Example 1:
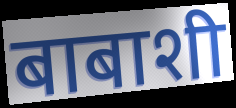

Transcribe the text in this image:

बाबाशी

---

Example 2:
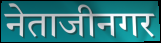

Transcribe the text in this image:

नेताजीनगर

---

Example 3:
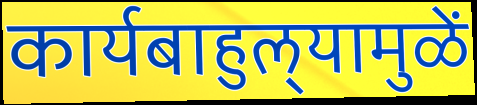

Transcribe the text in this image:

कार्यबाहुल्यामुळें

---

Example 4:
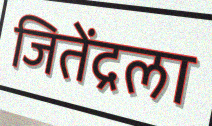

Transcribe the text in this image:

जितेंद्रला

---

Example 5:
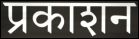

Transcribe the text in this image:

प्रकाशन